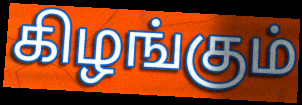
கிழங்கும்